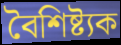
বৈশিষ্ট্যক